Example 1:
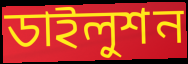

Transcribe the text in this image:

ডাইলুশন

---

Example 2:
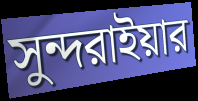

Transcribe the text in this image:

সুন্দরাইয়ার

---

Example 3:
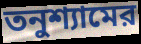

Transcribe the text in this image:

তনুশ্যামের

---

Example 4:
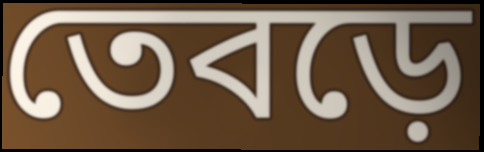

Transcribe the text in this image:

তেবড়ে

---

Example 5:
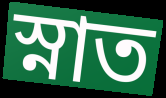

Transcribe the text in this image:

স্নাত